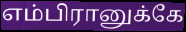
எம்பிரானுக்கே